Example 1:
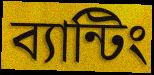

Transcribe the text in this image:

ব্যান্টিং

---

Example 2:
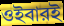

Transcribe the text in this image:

ওইবারই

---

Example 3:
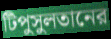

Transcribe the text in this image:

টিপুসুলতানের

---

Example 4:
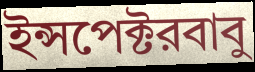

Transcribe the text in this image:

ইন্সপেক্টরবাবু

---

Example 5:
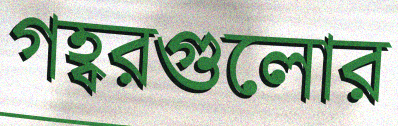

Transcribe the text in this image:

গহ্বরগুলোর